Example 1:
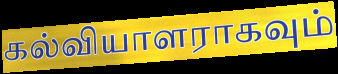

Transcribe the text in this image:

கல்வியாளராகவும்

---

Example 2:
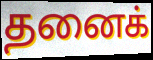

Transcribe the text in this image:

தனைக்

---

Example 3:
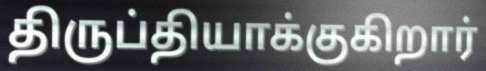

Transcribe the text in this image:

திருப்தியாக்குகிறார்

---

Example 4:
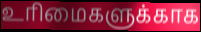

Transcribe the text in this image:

உரிமைகளுக்காக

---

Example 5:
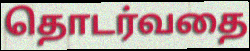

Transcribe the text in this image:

தொடர்வதை